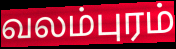
வலம்புரம்